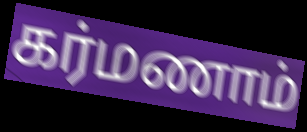
கர்மணாம்